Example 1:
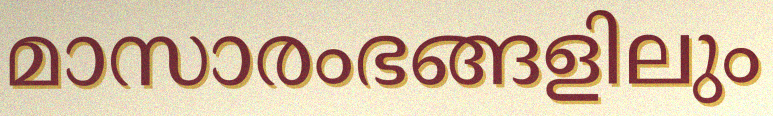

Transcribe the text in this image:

മാസാരംഭങ്ങളിലും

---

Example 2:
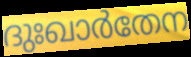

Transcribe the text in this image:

ദുഃഖാർതേന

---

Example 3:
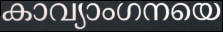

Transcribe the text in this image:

കാവ്യാംഗനയെ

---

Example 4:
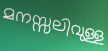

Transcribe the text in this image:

മനസ്സലിവുള്ള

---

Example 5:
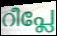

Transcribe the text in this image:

റീപ്ലേ